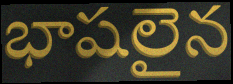
భాషలైన